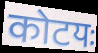
कोटयः